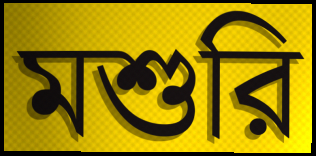
মশুরি